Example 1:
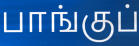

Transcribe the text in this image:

பாங்குப்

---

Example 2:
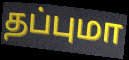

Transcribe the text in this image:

தப்புமா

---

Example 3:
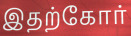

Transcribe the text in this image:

இதற்கோர்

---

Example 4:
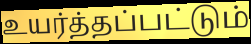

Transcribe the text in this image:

உயர்த்தப்பட்டும்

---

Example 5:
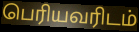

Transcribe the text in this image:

பெரியவரிடம்